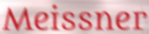
Meissner